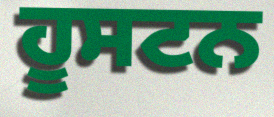
ਹੂਸਟਨ